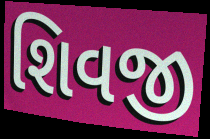
શિવજી